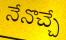
నేనొచ్చే